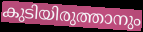
കുടിയിരുത്താനും